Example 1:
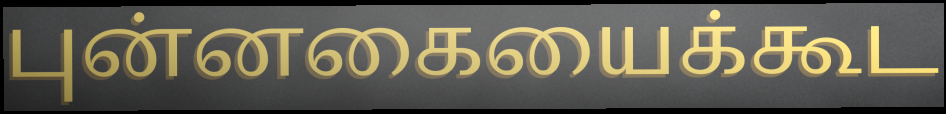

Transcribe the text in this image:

புன்னகையைக்கூட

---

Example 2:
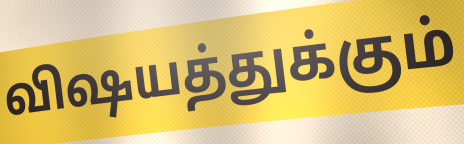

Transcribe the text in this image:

விஷயத்துக்கும்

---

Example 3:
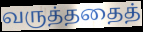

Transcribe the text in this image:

வருத்ததைத்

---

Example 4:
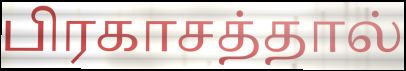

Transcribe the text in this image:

பிரகாசத்தால்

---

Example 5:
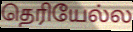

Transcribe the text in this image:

தெரியேல்ல